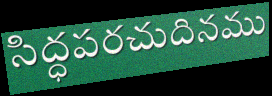
సిద్ధపరచుదినము